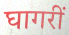
घागरीं